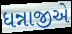
ધન્નાજીએ